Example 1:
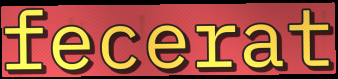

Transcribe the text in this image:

fecerat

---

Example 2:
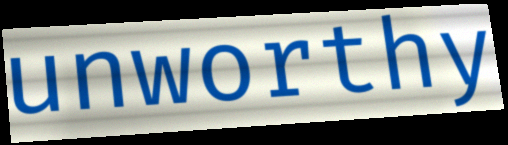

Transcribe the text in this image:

unworthy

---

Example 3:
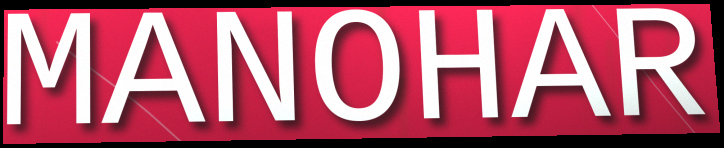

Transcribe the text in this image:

MANOHAR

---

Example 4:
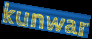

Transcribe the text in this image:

kunwar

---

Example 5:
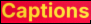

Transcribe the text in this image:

Captions